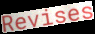
Revises